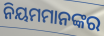
ନିୟମମାନଙ୍କର